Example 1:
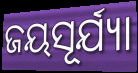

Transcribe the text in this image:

ଜୟସୂର୍ଯ୍ୟା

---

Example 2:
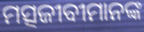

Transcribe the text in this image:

ମତ୍ସଜୀବୀମାନଙ୍କ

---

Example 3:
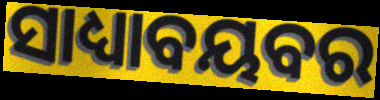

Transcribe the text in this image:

ସାଧ୍ୟାବୟବର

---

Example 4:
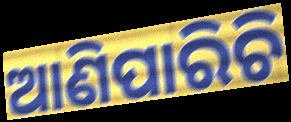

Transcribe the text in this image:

ଆଣିପାରିଚି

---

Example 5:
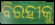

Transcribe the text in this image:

ବିରହୀକୁ